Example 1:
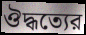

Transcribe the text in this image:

ঔদ্ধত্যের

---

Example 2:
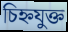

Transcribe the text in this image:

চিহ্নযুক্ত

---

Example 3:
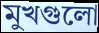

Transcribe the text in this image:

মুখগুলো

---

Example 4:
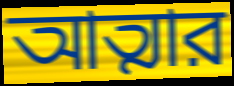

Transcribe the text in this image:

আত্মার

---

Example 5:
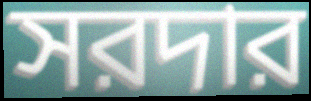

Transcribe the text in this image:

সরদার